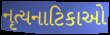
નૃત્યનાટિકાઓ